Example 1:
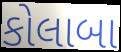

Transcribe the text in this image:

કોલાબા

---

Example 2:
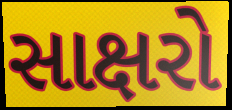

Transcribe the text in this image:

સાક્ષરો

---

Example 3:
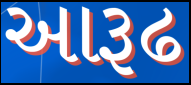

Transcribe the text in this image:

આરૂઢ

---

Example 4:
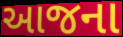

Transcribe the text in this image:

આજના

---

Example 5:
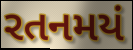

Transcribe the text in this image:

રતનમયં